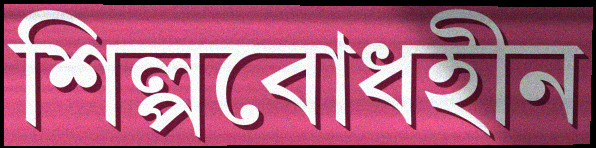
শিল্পবোধহীন